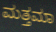
ಮತ್ತಮಾ